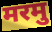
मरमु